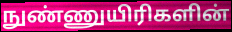
நுண்ணுயிரிகளின்